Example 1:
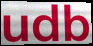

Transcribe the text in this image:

udb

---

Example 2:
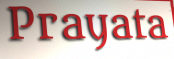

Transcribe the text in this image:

Prayata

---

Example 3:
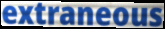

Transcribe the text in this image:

extraneous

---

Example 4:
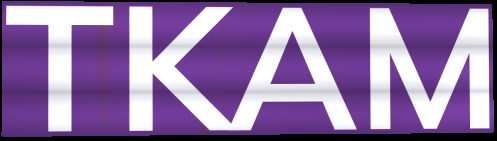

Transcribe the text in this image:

TKAM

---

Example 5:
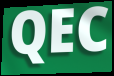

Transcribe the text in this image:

QEC